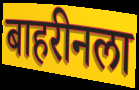
बाहरीनला